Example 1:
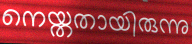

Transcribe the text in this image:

നെയ്തതായിരുന്നു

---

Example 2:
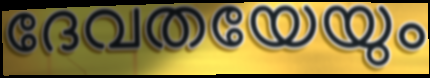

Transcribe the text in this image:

ദേവതയേയും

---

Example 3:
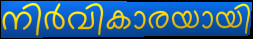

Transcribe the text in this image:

നിർവികാരയായി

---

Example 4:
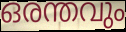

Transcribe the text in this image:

ഒരന്തവും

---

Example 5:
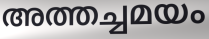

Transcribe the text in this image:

അത്തച്ചമയം